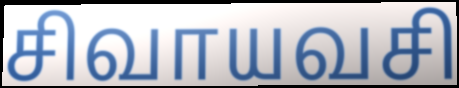
சிவாயவசி